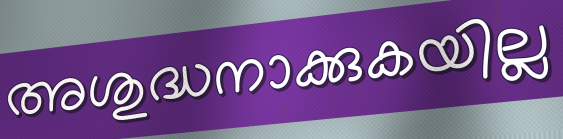
അശുദ്ധനാക്കുകയില്ല